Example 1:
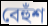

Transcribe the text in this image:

বেহুঁশ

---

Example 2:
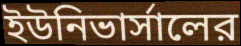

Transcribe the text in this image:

ইউনিভার্সালের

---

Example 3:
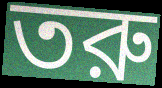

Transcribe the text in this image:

তরু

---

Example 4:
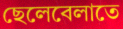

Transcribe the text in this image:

ছেলেবেলাতে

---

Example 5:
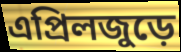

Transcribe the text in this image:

এপ্রিলজুড়ে